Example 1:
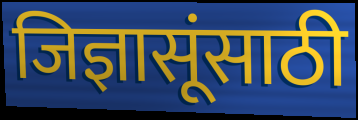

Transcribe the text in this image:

जिज्ञासूंसाठी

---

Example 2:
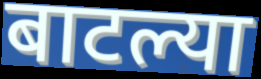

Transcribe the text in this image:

बाटल्या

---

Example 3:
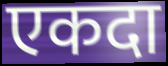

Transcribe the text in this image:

एकदा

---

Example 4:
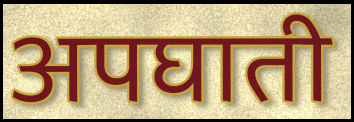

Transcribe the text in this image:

अपघाती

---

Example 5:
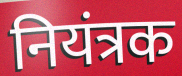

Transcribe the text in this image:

नियंत्रक